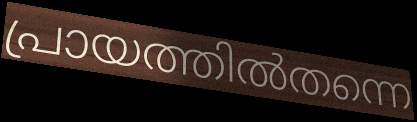
പ്രായത്തിൽതന്നെ